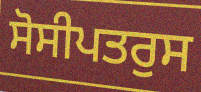
ਸੋਸੀਪਤਰੁਸ